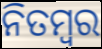
ନିତମ୍ୱର